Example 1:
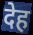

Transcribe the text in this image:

देह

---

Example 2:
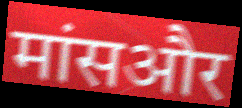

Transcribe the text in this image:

मांसऔर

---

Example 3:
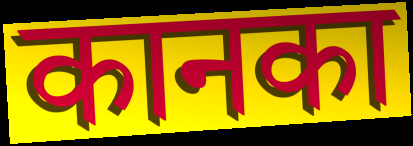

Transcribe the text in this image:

कानका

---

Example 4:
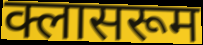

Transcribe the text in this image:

क्लासरूम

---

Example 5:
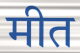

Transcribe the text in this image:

मीत